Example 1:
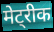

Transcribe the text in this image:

मेट्रीक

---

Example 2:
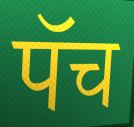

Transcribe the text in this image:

पॅच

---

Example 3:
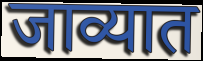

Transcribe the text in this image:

जाव्यात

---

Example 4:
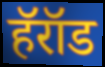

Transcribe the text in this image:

हॅरॉड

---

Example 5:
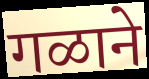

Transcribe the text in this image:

गळाने